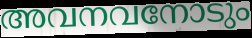
അവനവനോടും